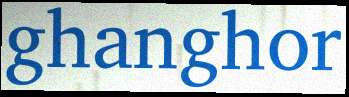
ghanghor